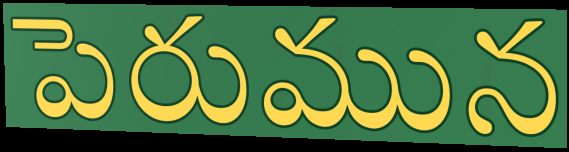
పెరుమున